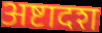
अष्टादश